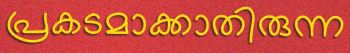
പ്രകടമാക്കാതിരുന്ന